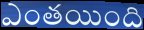
ఎంతయింది